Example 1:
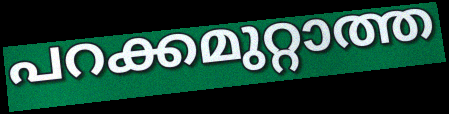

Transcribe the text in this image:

പറക്കമുറ്റാത്ത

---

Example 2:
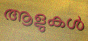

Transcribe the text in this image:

ആളുകൾ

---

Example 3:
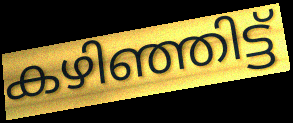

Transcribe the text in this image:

കഴിഞ്ഞിട്ട്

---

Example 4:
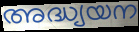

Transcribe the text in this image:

അദ്ധ്യയന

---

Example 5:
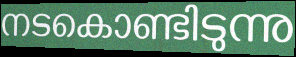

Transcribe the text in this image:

നടകൊണ്ടിടുന്നു